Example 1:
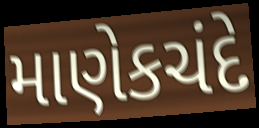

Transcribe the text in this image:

માણેકચંદે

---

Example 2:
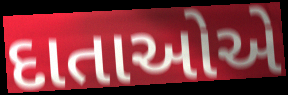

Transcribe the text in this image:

દાતાઓએ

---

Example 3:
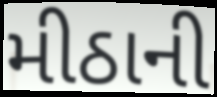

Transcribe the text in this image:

મીઠાની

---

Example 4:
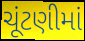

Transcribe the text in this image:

ચૂંટણીમાં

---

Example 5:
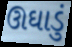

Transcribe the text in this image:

ઊઘાડું